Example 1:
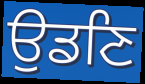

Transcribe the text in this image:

ਉਡਣਿ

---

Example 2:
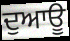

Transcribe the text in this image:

ਦੁਆਊ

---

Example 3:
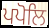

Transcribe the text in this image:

ਪਪੋਲਿ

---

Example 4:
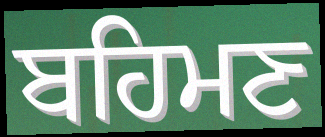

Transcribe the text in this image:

ਬਹਿਮਣ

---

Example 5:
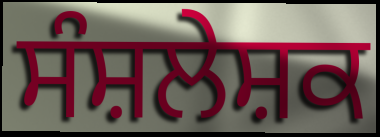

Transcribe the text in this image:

ਸੰਸ਼ਲੇਸ਼ਕ